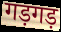
गड़गड़